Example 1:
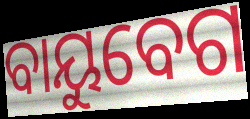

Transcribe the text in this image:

ବାୟୁବେଗ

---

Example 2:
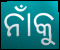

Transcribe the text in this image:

ନାଁକୁ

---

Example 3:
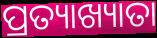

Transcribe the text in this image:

ପ୍ରତ୍ୟାଖ୍ୟାତା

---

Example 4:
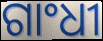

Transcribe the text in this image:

ଗାଂଧୀ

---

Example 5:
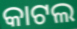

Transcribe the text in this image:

କାଟଲ